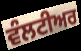
ਵੰਲਟੀਅਰ